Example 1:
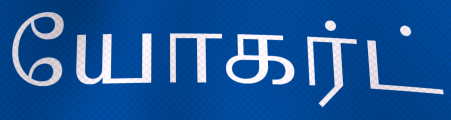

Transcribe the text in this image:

யோகர்ட்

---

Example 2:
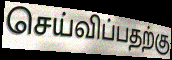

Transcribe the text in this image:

செய்விப்பதற்கு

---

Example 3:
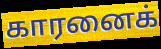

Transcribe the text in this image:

காரனைக்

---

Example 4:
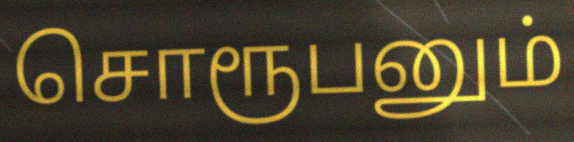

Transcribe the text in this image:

சொரூபனும்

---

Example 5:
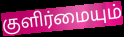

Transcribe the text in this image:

குளிர்மையும்